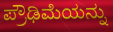
ಪ್ರೌಢಿಮೆಯನ್ನು